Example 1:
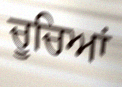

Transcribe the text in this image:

ਚੂਚਿਆਂ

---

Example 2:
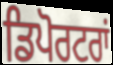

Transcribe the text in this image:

ਡਿਪੋਰਟਰਾਂ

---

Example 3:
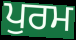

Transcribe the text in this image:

ਪੁਰਮ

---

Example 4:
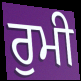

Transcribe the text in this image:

ਰੁਮੀ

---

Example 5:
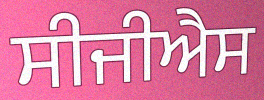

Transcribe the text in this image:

ਸੀਜੀਐਸ